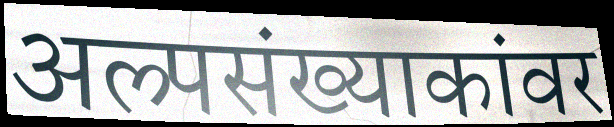
अल्पसंख्याकांवर